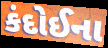
કંદોઈના